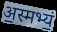
अ॒स्मभ्यं॒